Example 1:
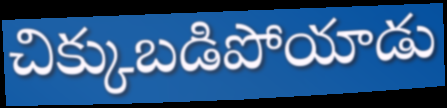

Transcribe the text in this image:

చిక్కుబడిపోయాడు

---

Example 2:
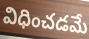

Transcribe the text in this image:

విధించడమే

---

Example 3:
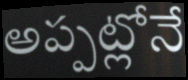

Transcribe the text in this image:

అప్పట్లోనే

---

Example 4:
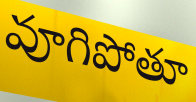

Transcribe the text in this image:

వూగిపోతూ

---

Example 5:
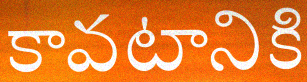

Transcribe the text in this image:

కావటానికి